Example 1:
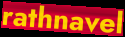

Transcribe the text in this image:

rathnavel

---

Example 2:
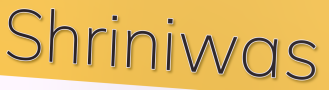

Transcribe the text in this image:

Shriniwas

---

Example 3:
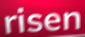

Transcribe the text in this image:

risen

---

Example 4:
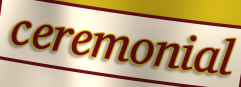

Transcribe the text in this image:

ceremonial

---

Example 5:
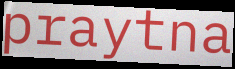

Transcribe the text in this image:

praytna